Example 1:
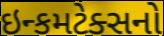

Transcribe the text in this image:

ઇન્કમટેક્સનો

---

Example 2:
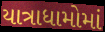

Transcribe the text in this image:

યાત્રાધામોમાં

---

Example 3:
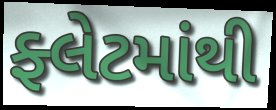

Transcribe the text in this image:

ફ્લેટમાંથી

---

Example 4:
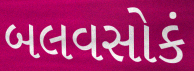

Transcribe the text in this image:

બલવસોકં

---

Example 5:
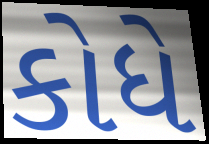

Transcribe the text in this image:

કોધે